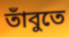
তাঁবুতে